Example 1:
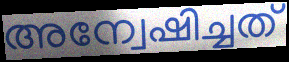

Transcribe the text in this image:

അന്വേഷിച്ചത്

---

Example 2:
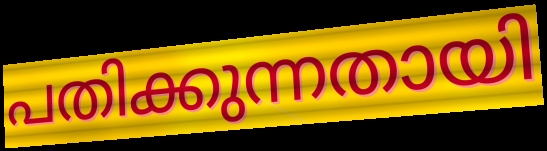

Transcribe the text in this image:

പതിക്കുന്നതായി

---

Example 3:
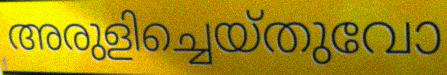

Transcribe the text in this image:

അരുളിച്ചെയ്തുവോ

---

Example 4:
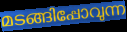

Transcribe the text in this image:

മടങ്ങിപ്പോവുന്ന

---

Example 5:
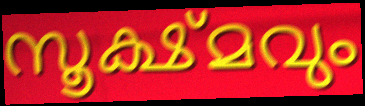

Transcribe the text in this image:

സൂക്ഷ്മവും